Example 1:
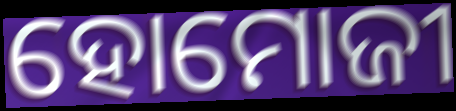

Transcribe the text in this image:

ହୋମୋଜୀ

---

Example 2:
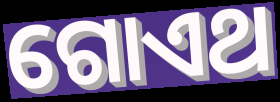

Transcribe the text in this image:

ଗୋଏଥ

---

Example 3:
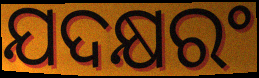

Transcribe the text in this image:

ଯଦକ୍ଷରଂ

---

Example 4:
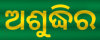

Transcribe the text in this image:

ଅଶୁଦ୍ଧିର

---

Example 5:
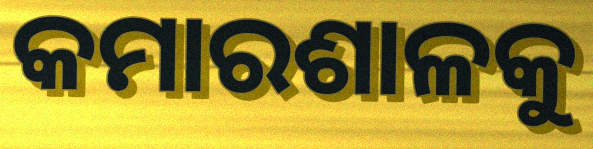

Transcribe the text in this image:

କମାରଶାଳକୁ